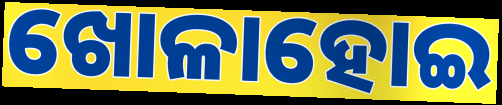
ଖୋଳାହୋଇ